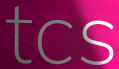
tcs